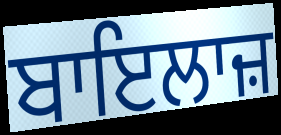
ਬਾਇਲਾਜ਼